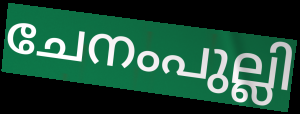
ചേനംപുല്ലി